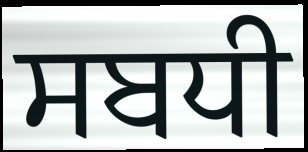
ਸਬਧੀ